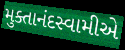
મુક્તાનંદસ્વામીએ